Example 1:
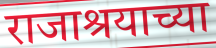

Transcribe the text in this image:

राजाश्रयाच्या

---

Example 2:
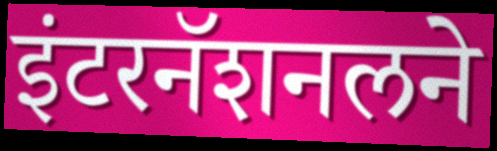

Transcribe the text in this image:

इंटरनॅशनलने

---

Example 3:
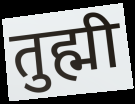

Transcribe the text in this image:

तुह्मी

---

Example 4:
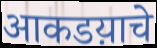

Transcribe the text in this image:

आकडय़ाचे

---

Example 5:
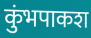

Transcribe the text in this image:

कुंभपाकश